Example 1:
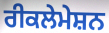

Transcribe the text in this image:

ਰੀਕਲੇਮੇਸ਼ਨ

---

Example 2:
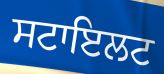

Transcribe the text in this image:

ਸਟਾਇਲਟ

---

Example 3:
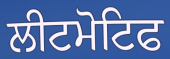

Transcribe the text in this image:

ਲੀਟਮੋਟਿਫ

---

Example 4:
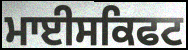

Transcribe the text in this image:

ਮਾਈਸਕਿਫਟ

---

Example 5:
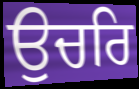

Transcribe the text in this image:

ਉਚਰਿ